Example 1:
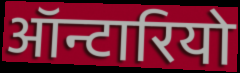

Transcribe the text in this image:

ऑन्टारियो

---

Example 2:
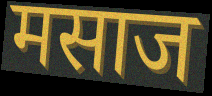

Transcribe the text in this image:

मसाज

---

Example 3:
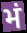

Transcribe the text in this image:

भं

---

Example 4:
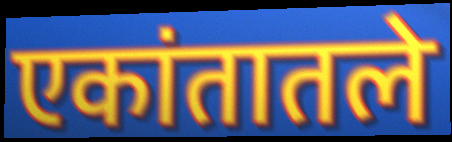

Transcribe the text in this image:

एकांतातले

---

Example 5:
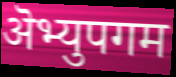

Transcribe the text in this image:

ऄभ्युपगम